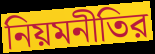
নিয়মনীতির